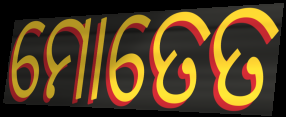
ମୋତେତ